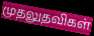
முதலுதவிகள்